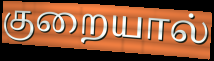
குறையால்